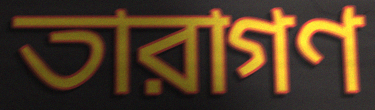
তারাগণ